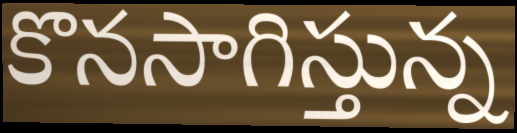
కొనసాగిస్తున్న